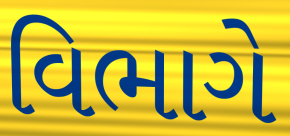
વિભાગે